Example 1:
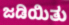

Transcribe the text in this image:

ಜಡಿಯಿತು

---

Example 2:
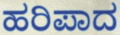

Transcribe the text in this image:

ಹರಿಪಾದ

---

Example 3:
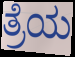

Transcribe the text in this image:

ತ್ರೆಯ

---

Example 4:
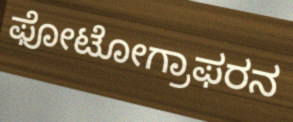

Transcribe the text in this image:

ಫೋಟೋಗ್ರಾಫರನ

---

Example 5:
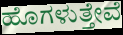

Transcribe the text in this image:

ಹೊಗಳುತ್ತೇವೆ